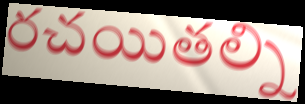
రచయితల్ని